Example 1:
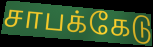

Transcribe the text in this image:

சாபக்கேடு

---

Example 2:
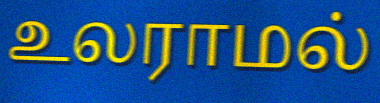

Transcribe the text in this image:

உலராமல்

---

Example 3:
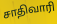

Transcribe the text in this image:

சாதிவாரி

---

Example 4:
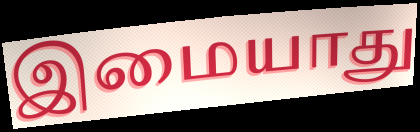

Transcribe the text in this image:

இமையாது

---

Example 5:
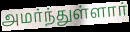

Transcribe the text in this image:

அமர்ந்துள்ளார்